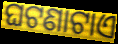
ଘଟଣାଟାଏ